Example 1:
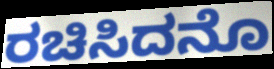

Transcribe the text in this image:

ರಚಿಸಿದನೊ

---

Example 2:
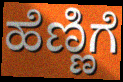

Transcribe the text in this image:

ಹೆಣ್ಣಿಗೆ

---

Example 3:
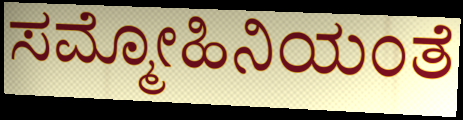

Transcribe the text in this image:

ಸಮ್ಮೋಹಿನಿಯಂತೆ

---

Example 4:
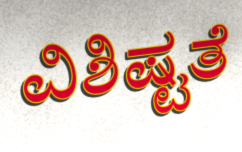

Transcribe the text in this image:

ವಿಶಿಷ್ಟತೆ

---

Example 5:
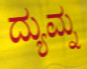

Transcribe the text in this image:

ದ್ಯುಮ್ನ